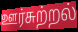
ஊர்சுற்றல்